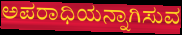
ಅಪರಾಧಿಯನ್ನಾಗಿಸುವ